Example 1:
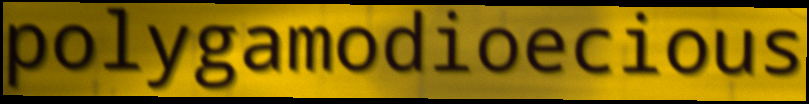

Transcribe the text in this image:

polygamodioecious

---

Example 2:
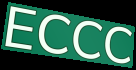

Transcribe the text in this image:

ECCC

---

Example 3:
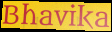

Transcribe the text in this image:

Bhavika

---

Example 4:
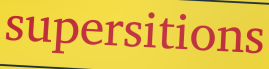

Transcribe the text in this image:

supersitions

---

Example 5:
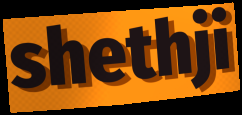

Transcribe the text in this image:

shethji